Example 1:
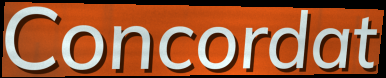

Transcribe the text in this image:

Concordat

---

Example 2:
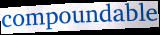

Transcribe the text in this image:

compoundable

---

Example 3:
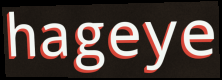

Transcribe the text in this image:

hageye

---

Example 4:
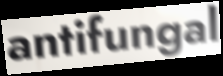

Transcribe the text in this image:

antifungal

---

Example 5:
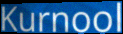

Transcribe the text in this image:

Kurnool